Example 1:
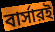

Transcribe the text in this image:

বার্সারই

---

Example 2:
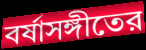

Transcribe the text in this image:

বর্ষাসঙ্গীতের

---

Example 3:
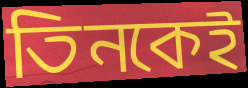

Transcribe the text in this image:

তিনকেই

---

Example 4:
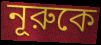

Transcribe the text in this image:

নূরুকে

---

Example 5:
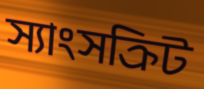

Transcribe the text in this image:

স্যাংসক্রিট